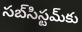
సబ్‌సిస్టమ్‌కు